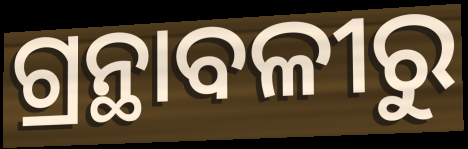
ଗ୍ରନ୍ଥାବଳୀରୁ